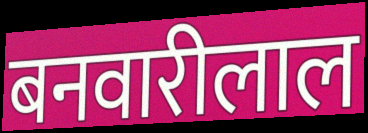
बनवारीलाल